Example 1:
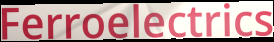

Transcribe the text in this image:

Ferroelectrics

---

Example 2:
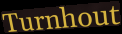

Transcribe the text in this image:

Turnhout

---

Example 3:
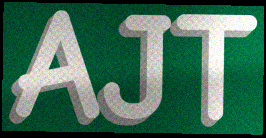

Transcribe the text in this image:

AJT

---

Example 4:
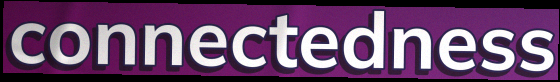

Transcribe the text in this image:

connectedness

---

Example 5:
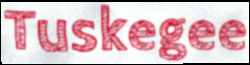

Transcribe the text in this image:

Tuskegee